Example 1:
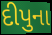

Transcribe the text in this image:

દીપુના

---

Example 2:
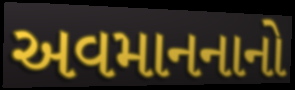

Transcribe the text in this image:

અવમાનનાનો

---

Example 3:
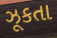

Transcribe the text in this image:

ઝૂકતા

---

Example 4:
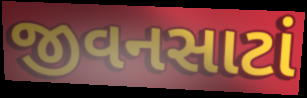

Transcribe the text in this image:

જીવનસાટાં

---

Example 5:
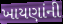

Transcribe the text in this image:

ખાયણાંની